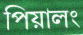
পিয়ালং